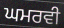
ਘਮਰਵੀ